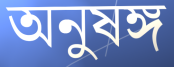
অনুষঙ্গ